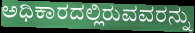
ಅಧಿಕಾರದಲ್ಲಿರುವವರನ್ನು